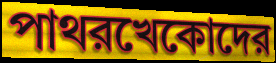
পাথরখেকোদের